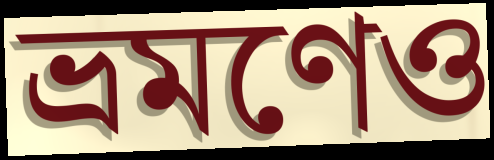
ভ্রমণেও